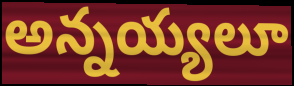
అన్నయ్యలూ